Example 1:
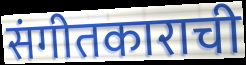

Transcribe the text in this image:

संगीतकाराची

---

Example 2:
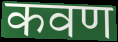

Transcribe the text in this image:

कवण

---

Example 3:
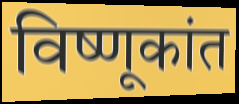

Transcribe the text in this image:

विष्णूकांत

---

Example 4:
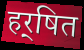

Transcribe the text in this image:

हर्षित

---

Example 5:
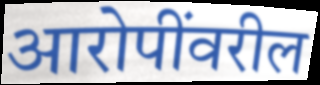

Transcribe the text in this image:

आरोपींवरील